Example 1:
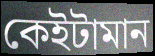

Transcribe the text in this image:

কেইটামান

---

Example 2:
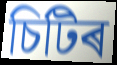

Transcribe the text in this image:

চিটিৰ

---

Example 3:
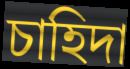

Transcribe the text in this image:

চাহিদা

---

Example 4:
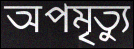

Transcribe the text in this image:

অপমৃত্যু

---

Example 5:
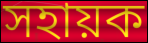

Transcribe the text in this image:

সহায়ক